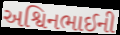
અશ્વિનભાઈની